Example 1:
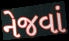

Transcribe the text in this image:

નેજવાં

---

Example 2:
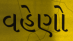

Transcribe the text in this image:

વહેણો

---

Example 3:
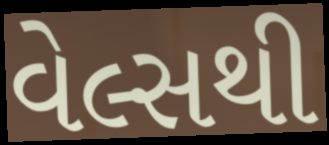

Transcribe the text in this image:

વેલ્સથી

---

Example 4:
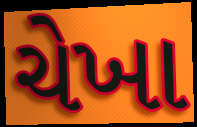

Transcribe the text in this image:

ચેખા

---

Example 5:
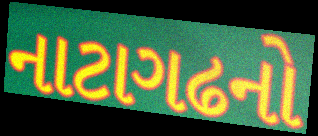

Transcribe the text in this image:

નાટાગઢનો